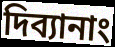
দিব্যানাং